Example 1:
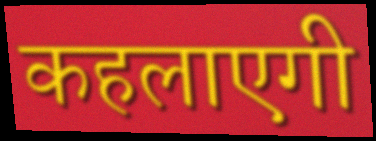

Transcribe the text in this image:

कहलाएगी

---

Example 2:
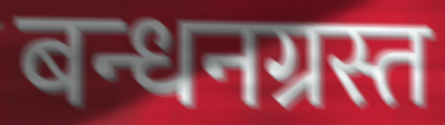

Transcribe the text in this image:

बन्धनग्रस्त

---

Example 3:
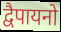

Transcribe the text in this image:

द्वैपायनो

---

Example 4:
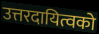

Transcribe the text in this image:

उत्तरदायित्वको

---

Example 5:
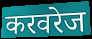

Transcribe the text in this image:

करवरेज